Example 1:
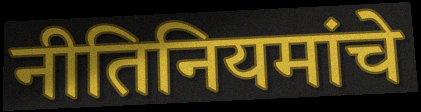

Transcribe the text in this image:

नीतिनियमांचे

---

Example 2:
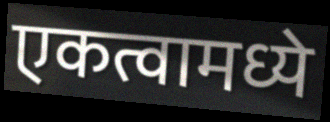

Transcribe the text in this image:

एकत्वामध्ये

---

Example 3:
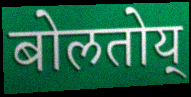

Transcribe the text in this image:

बोलतोय्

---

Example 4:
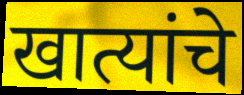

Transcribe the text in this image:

खात्यांचे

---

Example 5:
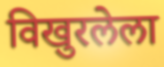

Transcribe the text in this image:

विखुरलेला